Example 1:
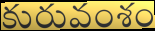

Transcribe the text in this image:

కురువంశం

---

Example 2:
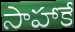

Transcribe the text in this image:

సాహాకే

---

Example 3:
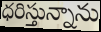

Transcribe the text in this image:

ధరిస్తున్నాను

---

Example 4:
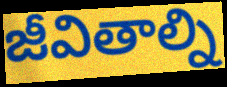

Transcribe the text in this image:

జీవితాల్ని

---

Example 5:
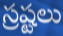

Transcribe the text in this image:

స్రష్టలు